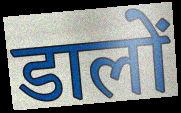
डालों